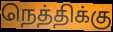
நெத்திக்கு